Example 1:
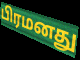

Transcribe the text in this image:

பிரமனது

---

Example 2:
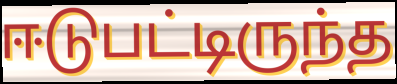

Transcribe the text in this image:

ஈடுபட்டிருந்த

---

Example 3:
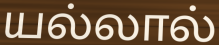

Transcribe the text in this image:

யல்லால்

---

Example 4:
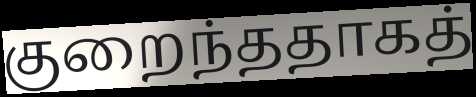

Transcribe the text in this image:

குறைந்ததாகத்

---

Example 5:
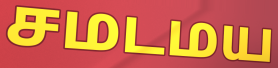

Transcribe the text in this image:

சமடமய